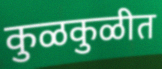
कुळकुळीत